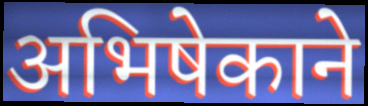
अभिषेकाने